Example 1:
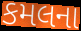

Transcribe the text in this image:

કમલના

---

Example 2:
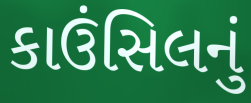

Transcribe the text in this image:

કાઉંસિલનું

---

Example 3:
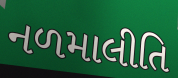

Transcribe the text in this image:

નળમાલીતિ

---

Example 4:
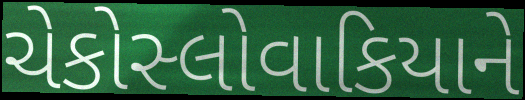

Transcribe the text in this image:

ચેકોસ્લોવાકિયાને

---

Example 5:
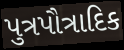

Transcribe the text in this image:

પુત્રપૌત્રાદિક